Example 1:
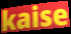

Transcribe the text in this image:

kaise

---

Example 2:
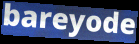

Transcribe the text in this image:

bareyode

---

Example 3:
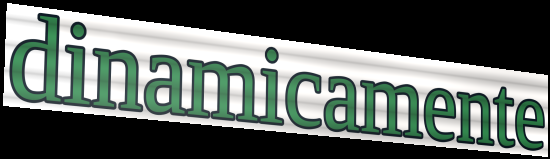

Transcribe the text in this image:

dinamicamente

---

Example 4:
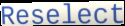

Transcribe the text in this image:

Reselect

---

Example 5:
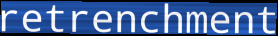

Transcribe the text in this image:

retrenchment